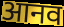
आनव